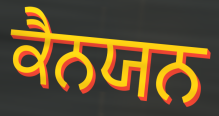
ਕੈਨਯਨ